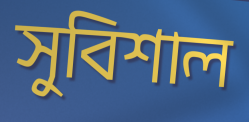
সুবিশাল